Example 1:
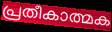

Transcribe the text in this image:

പ്രതീകാത്മക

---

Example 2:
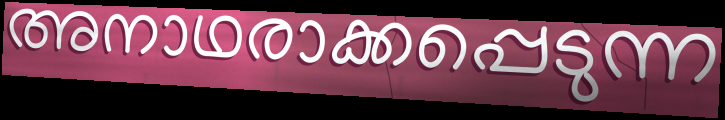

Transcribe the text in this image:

അനാഥരാക്കപ്പെടുന്ന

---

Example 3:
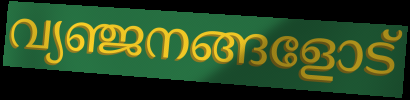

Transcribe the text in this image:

വ്യഞ്ജനങ്ങളോട്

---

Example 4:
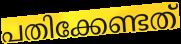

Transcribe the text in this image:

പതിക്കേണ്ടത്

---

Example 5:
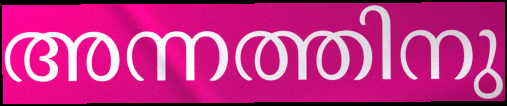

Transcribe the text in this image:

അന്നത്തിനു